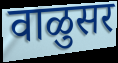
वाळुसर